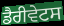
ਡੈਰੀਵੇਟਸ